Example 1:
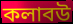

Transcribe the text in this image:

কলাবউ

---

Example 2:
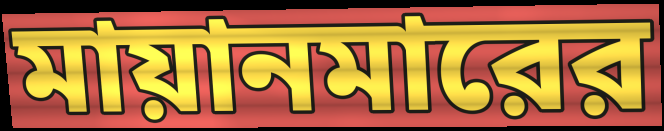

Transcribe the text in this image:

মায়ানমারের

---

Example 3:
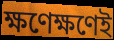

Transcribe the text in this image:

ক্ষণেক্ষণেই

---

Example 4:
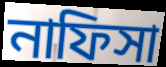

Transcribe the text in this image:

নাফিসা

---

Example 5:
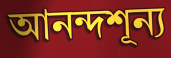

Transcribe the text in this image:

আনন্দশূন্য